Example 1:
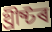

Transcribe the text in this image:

খ্ৰীষ্টৰ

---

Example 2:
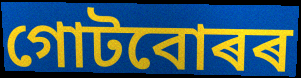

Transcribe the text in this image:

গোটবোৰৰ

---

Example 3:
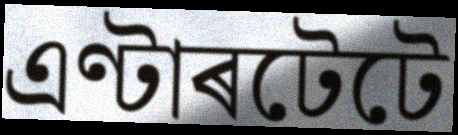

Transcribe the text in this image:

এণ্টাৰটেটে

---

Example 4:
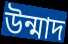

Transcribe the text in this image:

উন্মাদ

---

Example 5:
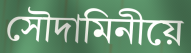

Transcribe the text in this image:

সৌদামিনীয়ে